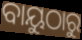
ବାୟୁଠାରୁ